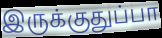
இருக்குதுப்பா